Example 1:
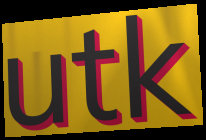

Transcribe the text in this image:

utk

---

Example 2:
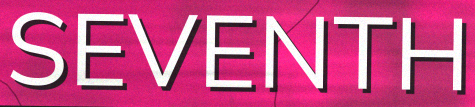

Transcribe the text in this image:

SEVENTH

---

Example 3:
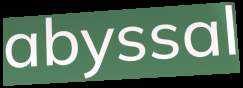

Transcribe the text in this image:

abyssal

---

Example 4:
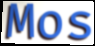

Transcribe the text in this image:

Mos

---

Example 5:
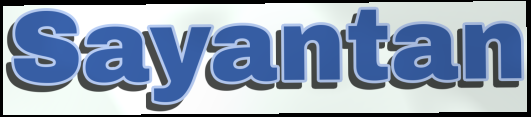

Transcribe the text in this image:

Sayantan